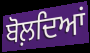
ਬੋਲ਼ਦਿਆਂ